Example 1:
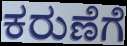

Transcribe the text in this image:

ಕರುಣೆಗೆ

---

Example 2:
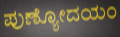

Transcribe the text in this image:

ಪುಣ್ಯೋದಯಂ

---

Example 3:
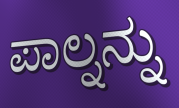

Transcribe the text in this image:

ಪಾಲ್ನನ್ನು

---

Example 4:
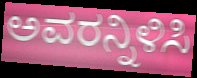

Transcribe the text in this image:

ಅವರನ್ನಿಳಿಸಿ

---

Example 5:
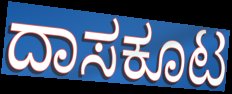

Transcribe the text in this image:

ದಾಸಕೂಟ